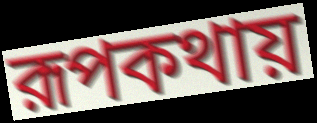
রূপকথায়